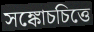
সঙ্কোচচিত্তে